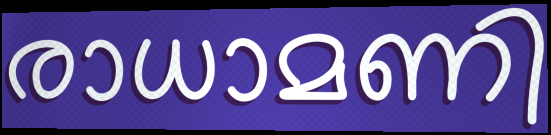
രാധാമണി